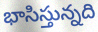
భాసిస్తున్నది